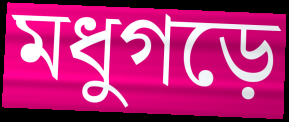
মধুগড়ে